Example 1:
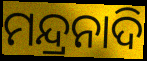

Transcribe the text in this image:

ମନ୍ଦ୍ରନାଦି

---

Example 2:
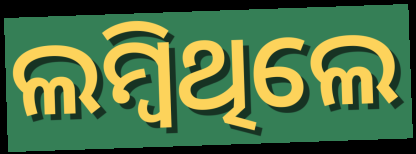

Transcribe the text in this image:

ଲମ୍ବିଥିଲେ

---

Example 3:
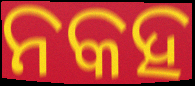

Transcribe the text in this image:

ନକହ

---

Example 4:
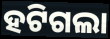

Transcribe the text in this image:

ହଟିଗଲା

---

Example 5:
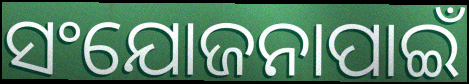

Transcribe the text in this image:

ସଂଯୋଜନାପାଇଁ